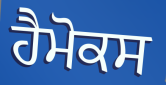
ਹੈਮੋਕਸ